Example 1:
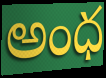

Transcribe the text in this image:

అంధ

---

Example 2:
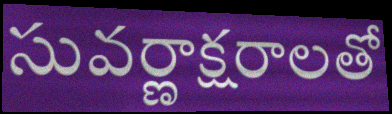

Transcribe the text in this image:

సువర్ణాక్షరాలతో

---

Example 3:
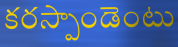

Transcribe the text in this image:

కరస్పాండెంటు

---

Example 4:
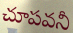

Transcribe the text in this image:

చూపవనీ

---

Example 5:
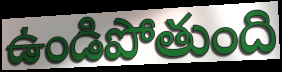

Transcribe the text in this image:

ఉండిపోతుంది